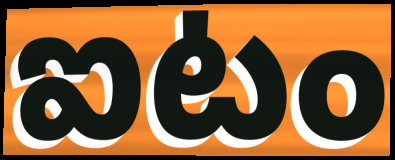
ఐటం